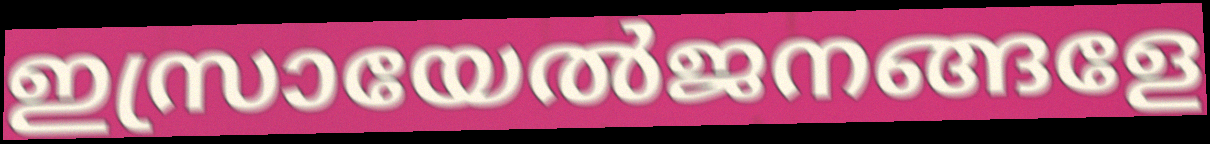
ഇസ്രായേൽജനങ്ങളേ